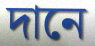
দানে